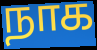
நாக